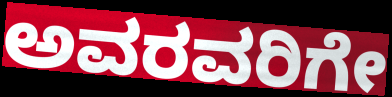
ಅವರವರಿಗೇ